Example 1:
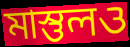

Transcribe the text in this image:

মাস্তুলও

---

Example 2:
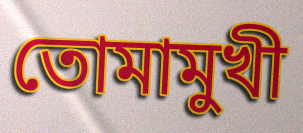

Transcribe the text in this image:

তোমামুখী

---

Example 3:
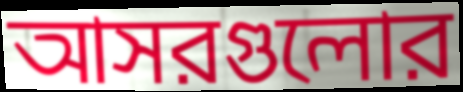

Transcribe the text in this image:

আসরগুলোর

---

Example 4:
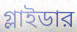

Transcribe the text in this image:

গ্লাইডার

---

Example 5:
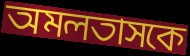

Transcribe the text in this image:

অমলতাসকে